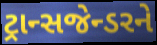
ટ્રાન્સજેન્ડરને